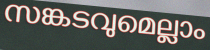
സങ്കടവുമെല്ലാം